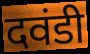
दवंडी